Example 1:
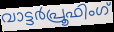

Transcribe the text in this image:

വാട്ടർപ്രൂഫിംഗ്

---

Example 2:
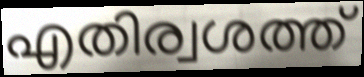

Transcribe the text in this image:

എതിര്വശത്ത്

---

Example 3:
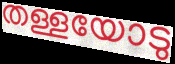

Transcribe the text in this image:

തള്ളയോടു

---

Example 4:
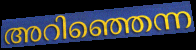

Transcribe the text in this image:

അറിഞ്ഞെന്ന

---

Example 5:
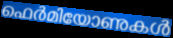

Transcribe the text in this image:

ഫെർമിയോണുകൾ